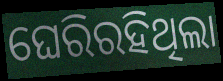
ଘେରିରହିଥିଲା